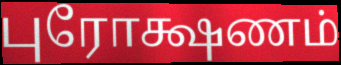
புரோக்ஷணம்